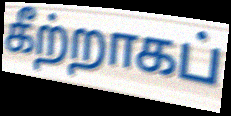
கீற்றாகப்